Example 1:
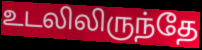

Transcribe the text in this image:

உடலிலிருந்தே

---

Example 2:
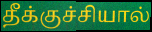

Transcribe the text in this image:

தீக்குச்சியால்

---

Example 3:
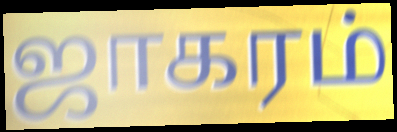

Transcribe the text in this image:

ஜாகரம்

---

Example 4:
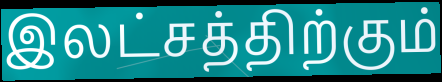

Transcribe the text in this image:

இலட்சத்திற்கும்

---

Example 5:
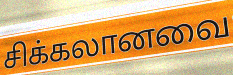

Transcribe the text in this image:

சிக்கலானவை